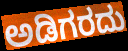
ಅಡಿಗರದು